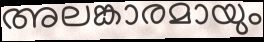
അലങ്കാരമായും